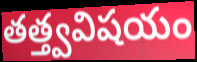
తత్త్వవిషయం